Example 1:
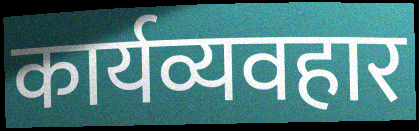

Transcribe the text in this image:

कार्यव्यवहार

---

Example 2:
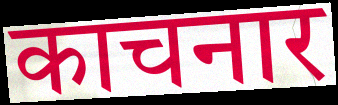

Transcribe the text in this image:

काचनार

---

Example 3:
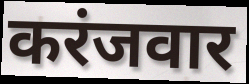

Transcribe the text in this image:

करंजवार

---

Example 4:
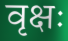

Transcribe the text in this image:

वृक्षः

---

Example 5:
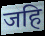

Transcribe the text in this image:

जहि